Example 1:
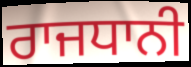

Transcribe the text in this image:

ਰਾਜਧਾਨੀ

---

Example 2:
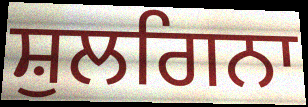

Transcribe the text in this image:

ਸ਼ੁਲਗਿਨਾ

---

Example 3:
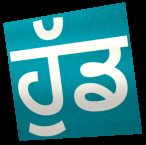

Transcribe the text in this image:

ਹੁੱਡ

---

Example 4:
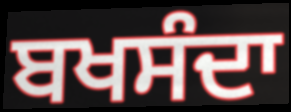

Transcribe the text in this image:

ਬਖਸੰਦਾ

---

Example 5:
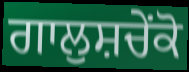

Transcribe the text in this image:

ਗਾਲੁਸ਼ਚੇਂਕੋ